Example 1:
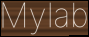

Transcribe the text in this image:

Mylab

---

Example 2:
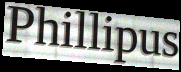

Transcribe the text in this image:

Phillipus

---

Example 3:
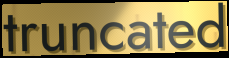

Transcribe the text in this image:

truncated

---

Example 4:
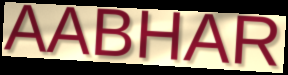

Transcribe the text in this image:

AABHAR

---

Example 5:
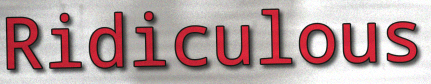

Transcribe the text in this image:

Ridiculous